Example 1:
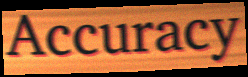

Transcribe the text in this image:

Accuracy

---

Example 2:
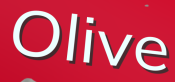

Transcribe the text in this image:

Olive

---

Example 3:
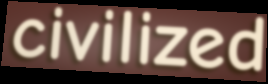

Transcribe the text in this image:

civilized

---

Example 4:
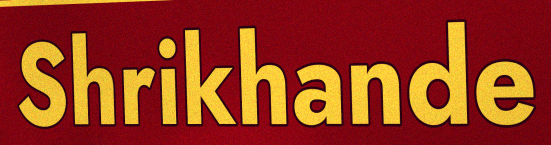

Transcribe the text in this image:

Shrikhande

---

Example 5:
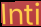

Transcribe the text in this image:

Inti